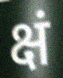
क्षं